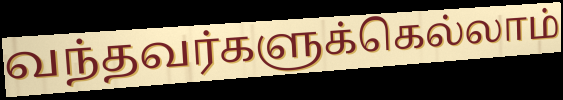
வந்தவர்களுக்கெல்லாம்